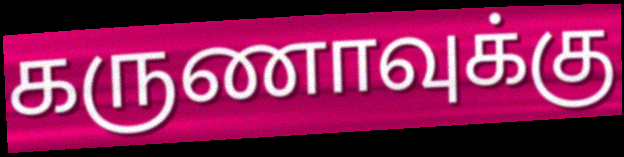
கருணாவுக்கு